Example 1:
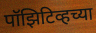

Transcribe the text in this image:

पॉझिटिव्हच्या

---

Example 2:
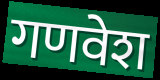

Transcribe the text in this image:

गणवेश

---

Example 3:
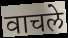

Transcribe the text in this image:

वाचले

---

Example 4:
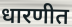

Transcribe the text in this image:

धारणीत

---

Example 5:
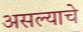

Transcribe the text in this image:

असल्‍याचे